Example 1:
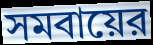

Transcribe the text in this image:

সমবায়ের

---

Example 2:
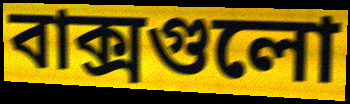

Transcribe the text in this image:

বাক্সগুলো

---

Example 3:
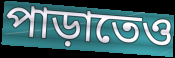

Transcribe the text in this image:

পাড়াতেও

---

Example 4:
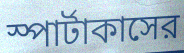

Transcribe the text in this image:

স্পার্টাকাসের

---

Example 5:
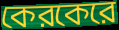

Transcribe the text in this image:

কেরকেরে